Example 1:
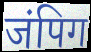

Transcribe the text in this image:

जंपिग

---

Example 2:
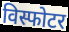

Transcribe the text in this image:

विस्फोटर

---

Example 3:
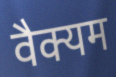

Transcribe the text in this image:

वैक्यम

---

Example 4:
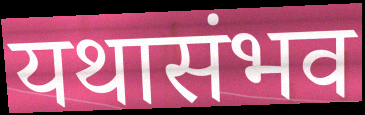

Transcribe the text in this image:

यथासंभव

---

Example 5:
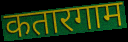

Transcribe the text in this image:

कतारगाम